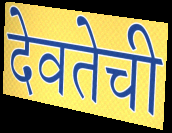
देवतेची